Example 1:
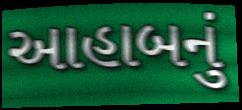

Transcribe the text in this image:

આહાબનું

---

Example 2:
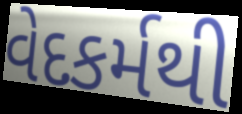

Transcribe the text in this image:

વેદકર્મથી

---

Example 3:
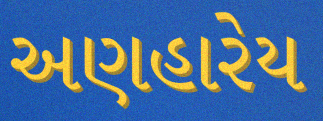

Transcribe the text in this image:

અણહારેય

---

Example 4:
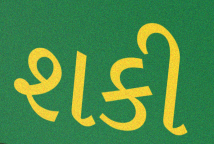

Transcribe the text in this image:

શકી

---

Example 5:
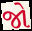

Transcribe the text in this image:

જો